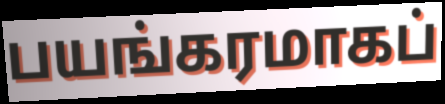
பயங்கரமாகப்